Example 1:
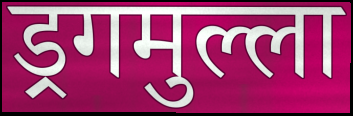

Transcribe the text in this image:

ड्रगमुल्ला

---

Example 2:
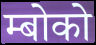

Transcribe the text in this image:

म्बोको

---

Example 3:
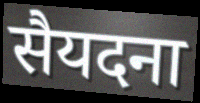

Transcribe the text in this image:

सैयदना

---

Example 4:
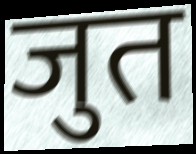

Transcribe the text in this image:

जुत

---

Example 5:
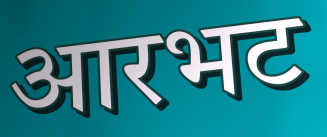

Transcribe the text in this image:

आरभट